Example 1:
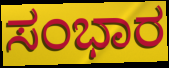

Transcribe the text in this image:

ಸಂಭಾರ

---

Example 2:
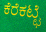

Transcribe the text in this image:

ಕೆರೆಕಟ್ಟೆ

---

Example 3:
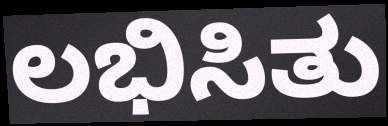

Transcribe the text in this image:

ಲಭಿಸಿತು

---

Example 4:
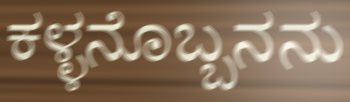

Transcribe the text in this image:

ಕಳ್ಳನೊಬ್ಬನನು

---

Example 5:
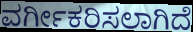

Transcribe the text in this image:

ವರ್ಗೀಕರಿಸಲಾಗಿದೆ